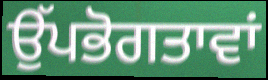
ਉੱਪਭੋਗਤਾਵਾਂ